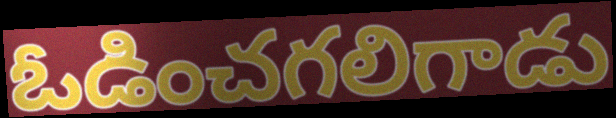
ఓడించగలిగాడు